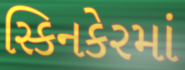
સ્કિનકેરમાં